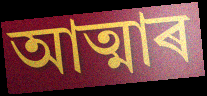
আত্মাৰ